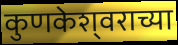
कुणकेश्वराच्या